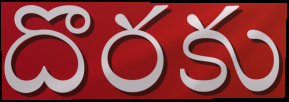
దొరకు